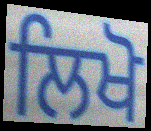
ਲਿਖੋ